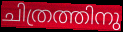
ചിത്രത്തിനു